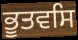
ਭੂਤਵਸਿ